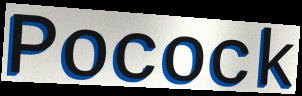
Pocock